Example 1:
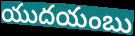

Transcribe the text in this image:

యుదయంబు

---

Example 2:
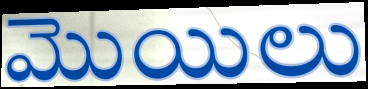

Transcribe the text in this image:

మొయిలు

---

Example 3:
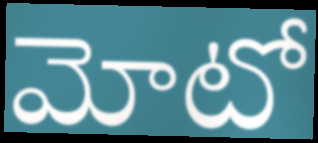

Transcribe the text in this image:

మోటో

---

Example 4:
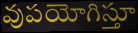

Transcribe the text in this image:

వుపయోగిస్తూ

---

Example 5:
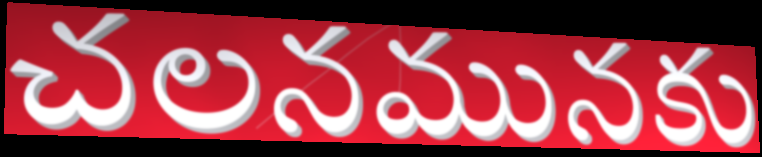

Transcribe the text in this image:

చలనమునకు